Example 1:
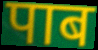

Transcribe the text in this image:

पाब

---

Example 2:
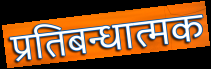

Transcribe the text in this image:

प्रतिबन्धात्मक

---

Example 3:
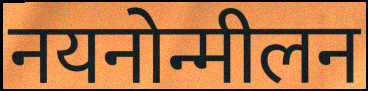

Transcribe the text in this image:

नयनोन्मीलन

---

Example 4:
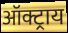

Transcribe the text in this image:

ऑक्ट्राय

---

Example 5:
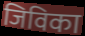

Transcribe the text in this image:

जिविका